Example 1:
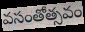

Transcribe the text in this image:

వసంతోత్సవం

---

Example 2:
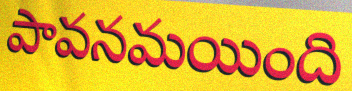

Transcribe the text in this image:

పావనమయింది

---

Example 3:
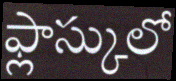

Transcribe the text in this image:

ఫ్లాస్కులో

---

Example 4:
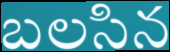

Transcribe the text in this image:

బలసిన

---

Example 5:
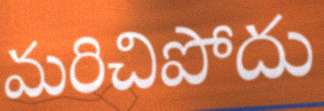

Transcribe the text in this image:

మరిచిపోదు